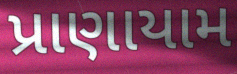
પ્રાણાયામ